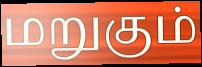
மறுகும்